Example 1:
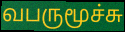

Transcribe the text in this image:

வபருமூச்சு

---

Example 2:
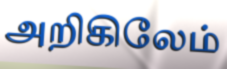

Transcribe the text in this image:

அறிகிலேம்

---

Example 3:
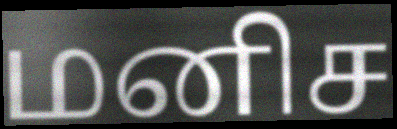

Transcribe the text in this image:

மனிச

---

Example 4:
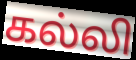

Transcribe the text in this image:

கல்லி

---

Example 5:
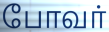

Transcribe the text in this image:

போவர்